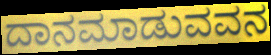
ದಾನಮಾಡುವವನ